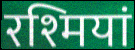
रश्मियां